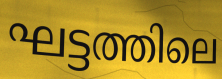
ഘട്ടത്തിലെ